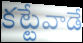
కట్టేవాడే